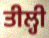
ਤੀਲ੍ਹੀ